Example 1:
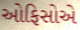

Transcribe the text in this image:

ઓફિસોએ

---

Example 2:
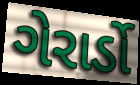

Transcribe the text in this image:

ગેરાર્ડો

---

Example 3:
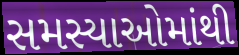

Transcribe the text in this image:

સમસ્યાઓમાંથી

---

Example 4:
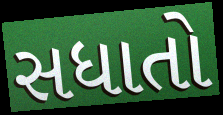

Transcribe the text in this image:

સધાતો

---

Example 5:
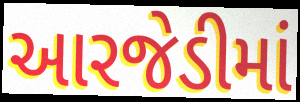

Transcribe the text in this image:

આરજેડીમાં